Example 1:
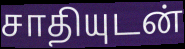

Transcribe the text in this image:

சாதியுடன்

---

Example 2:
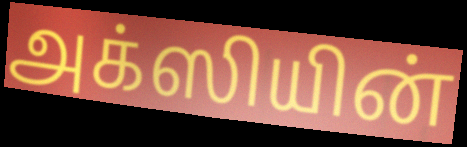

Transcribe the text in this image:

அக்ஸியின்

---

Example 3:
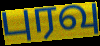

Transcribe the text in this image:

புரவு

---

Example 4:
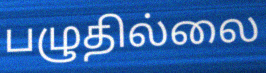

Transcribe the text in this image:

பழுதில்லை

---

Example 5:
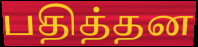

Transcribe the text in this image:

பதித்தன